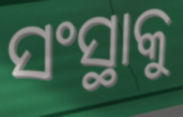
ସଂସ୍ଥାକୁ